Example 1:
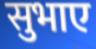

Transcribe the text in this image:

सुभाए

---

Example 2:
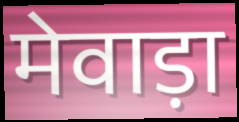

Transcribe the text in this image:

मेवाड़ा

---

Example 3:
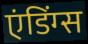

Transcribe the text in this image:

एंडिंग्स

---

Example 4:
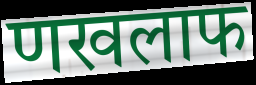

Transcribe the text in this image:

णखलाफ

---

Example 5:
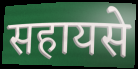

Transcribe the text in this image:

सहायसे